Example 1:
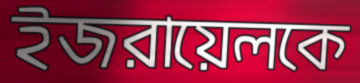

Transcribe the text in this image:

ইজরায়েলকে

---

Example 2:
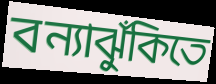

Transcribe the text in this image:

বন্যাঝুঁকিতে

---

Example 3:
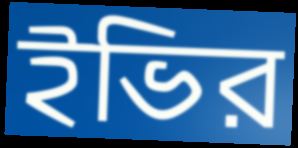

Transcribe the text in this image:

ইভির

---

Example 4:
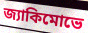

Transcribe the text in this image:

জ্যাকিমোভে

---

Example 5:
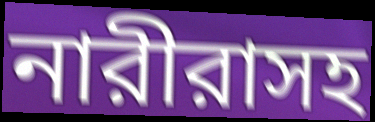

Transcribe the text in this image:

নারীরাসহ